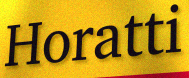
Horatti